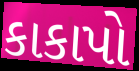
કાકાપો